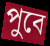
পুবে